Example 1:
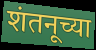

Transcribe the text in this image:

शंतनूच्या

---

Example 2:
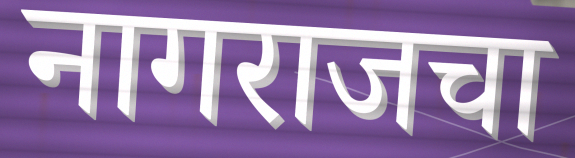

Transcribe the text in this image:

नागराजचा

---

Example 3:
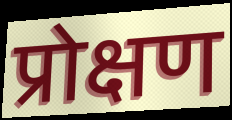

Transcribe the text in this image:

प्रोक्षण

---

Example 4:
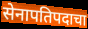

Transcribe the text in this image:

सेनापतिपदाचा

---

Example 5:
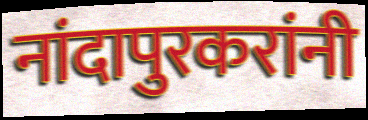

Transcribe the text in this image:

नांदापुरकरांनी